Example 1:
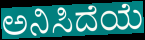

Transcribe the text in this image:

ಅನಿಸಿದೆಯೆ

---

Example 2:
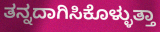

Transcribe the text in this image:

ತನ್ನದಾಗಿಸಿಕೊಳ್ಳುತ್ತಾ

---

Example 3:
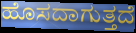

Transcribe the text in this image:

ಹೊಸದಾಗುತ್ತದೆ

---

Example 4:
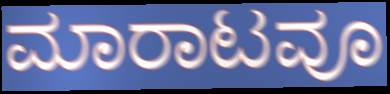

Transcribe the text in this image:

ಮಾರಾಟವೂ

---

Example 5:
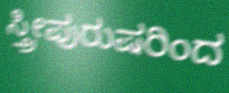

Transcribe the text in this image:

ಸ್ತ್ರೀಪುರುಷರಿಂದ